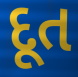
દૂત